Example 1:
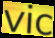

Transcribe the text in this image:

vic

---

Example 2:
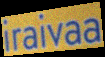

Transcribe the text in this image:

iraivaa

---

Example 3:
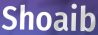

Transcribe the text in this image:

Shoaib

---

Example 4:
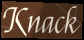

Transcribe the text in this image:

Knack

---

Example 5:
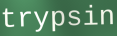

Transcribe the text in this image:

trypsin